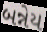
બન્નેય